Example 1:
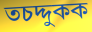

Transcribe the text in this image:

তচদ্দুকক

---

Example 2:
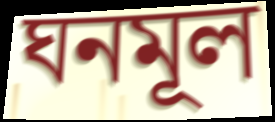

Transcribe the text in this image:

ঘনমূল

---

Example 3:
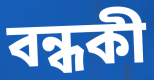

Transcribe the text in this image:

বন্ধকী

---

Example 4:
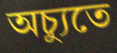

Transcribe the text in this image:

অচ্যুতে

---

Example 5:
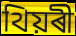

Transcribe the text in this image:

থিয়ৰী